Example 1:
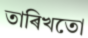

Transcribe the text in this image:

তাৰিখতো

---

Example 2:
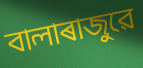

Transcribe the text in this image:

বালাৰাজুৱে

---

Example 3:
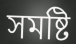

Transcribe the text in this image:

সমষ্টি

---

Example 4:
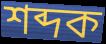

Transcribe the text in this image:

শব্দক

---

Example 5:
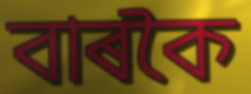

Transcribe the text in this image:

বাৰকৈ